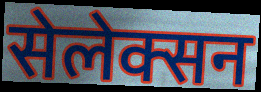
सेलेक्सन